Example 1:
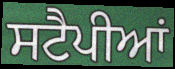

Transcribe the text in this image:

ਸਟੈਪੀਆਂ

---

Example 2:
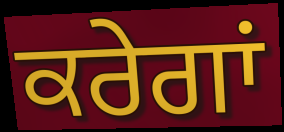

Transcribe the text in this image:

ਕਰੇਗਾਂ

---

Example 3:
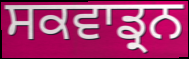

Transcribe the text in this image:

ਸਕਵਾਡ੍ਰਨ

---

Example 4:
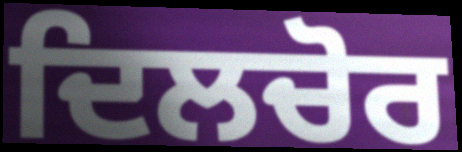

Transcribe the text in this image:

ਦਿਲਚੋਰ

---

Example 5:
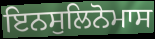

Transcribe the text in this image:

ਇਨਸੁਲਿਨੋਮਾਸ